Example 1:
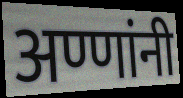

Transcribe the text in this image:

अण्णांनी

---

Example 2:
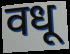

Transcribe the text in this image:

वधू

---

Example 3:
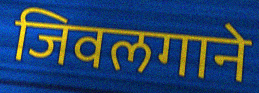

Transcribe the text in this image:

जिवलगाने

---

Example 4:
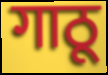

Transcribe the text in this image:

गाठू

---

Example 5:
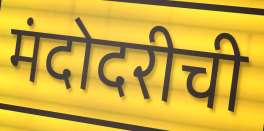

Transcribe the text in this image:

मंदोदरीची